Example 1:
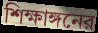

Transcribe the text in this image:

শিক্ষাঙ্গনের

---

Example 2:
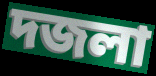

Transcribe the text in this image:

দজলা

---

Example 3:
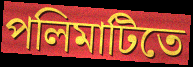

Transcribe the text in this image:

পলিমাটিতে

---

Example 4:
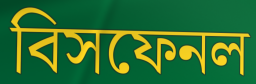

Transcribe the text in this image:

বিসফেনল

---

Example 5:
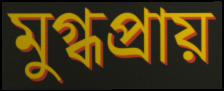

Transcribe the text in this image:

মুগ্ধপ্রায়